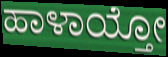
ಹಾಳಾಯ್ತೋ